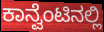
ಕಾನ್ವೆಂಟಿನಲ್ಲಿ